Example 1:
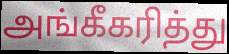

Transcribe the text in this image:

அங்கீகரித்து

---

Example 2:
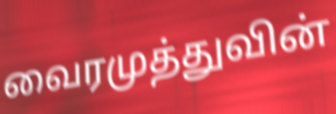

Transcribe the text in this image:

வைரமுத்துவின்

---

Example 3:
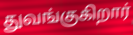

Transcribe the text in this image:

துவங்குகிறார்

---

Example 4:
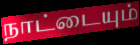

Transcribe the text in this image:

நாட்டையும்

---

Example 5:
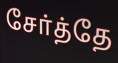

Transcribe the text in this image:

சேர்த்தே